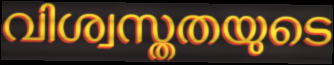
വിശ്വസ്തതയുടെ